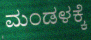
ಮಂಡಳಕ್ಕೆ